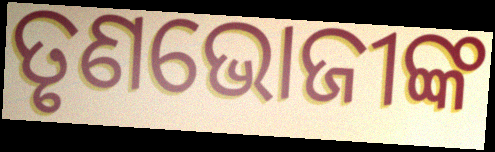
ତୃଣଭୋଜୀଙ୍କ